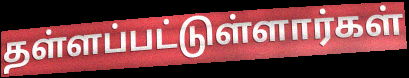
தள்ளப்பட்டுள்ளார்கள்